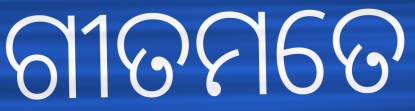
ଗୀତମତେ